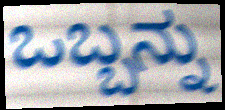
ಒಬ್ಬನ್ನು